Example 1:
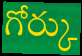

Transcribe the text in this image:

గోర్కు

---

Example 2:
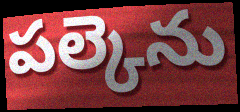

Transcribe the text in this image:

పల్కెను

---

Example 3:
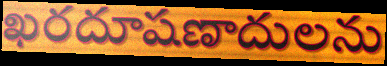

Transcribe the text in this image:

ఖరదూషణాదులను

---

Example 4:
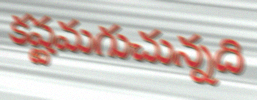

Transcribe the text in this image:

కష్టమగుచున్నది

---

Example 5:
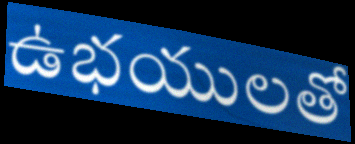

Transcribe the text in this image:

ఉభయులతో